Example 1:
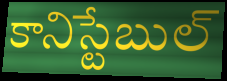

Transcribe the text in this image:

కానిస్టేబుల్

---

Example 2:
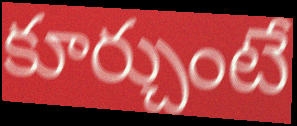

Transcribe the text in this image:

కూర్చుంటే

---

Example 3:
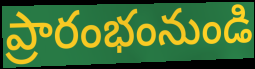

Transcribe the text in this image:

ప్రారంభంనుండి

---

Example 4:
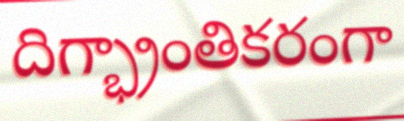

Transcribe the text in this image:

దిగ్భ్రాంతికరంగా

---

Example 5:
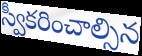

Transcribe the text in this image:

స్వీకరించాల్సిన